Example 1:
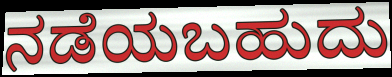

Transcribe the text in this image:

ನಡೆಯಬಹುದು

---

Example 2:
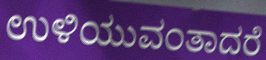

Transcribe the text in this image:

ಉಳಿಯುವಂತಾದರೆ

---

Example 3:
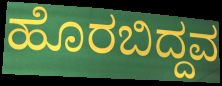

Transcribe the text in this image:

ಹೊರಬಿದ್ದವ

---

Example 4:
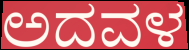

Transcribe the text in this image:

ಅದವಳ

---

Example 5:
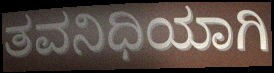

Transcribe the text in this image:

ತವನಿಧಿಯಾಗಿ